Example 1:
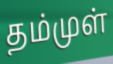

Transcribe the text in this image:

தம்முள்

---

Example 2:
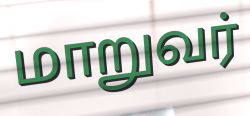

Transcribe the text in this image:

மாறுவர்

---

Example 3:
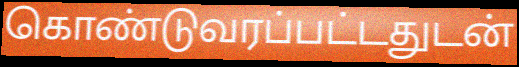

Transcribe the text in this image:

கொண்டுவரப்பட்டதுடன்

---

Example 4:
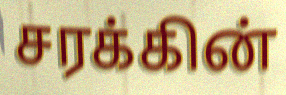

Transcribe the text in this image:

சரக்கின்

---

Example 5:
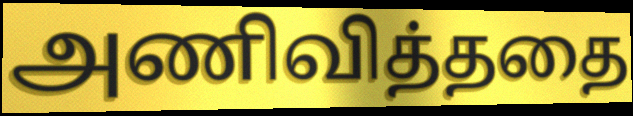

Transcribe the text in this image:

அணிவித்ததை